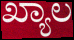
ಖ್ಯಾಲ